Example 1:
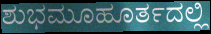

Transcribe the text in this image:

ಶುಭಮೂಹೂರ್ತದಲ್ಲಿ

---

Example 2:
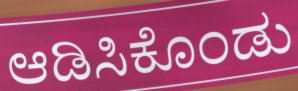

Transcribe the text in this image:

ಆಡಿಸಿಕೊಂಡು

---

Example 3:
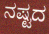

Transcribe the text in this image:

ನಷ್ಟದ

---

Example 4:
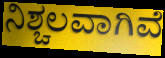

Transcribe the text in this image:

ನಿಶ್ಚಲವಾಗಿವೆ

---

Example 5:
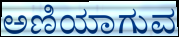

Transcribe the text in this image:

ಅಣಿಯಾಗುವ